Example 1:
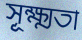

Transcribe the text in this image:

সূক্ষ্মতা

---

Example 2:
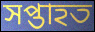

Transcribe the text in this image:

সপ্তাহত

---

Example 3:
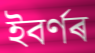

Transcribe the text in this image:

ইবৰ্ণৰ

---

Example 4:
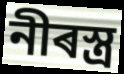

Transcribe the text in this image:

নীৰস্ত্ৰ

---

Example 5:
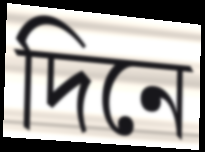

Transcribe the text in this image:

দিনে